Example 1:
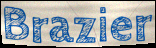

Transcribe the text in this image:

Brazier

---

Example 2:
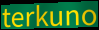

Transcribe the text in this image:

terkuno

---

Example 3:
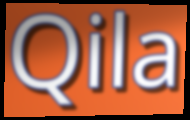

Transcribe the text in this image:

Qila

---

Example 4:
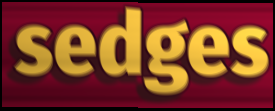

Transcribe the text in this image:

sedges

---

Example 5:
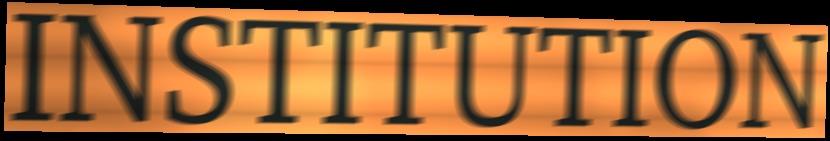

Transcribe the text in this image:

INSTITUTION